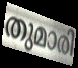
തുമാരി